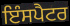
ਇੰਸਪੈਟਰ